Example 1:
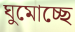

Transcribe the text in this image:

ঘুমোচ্ছে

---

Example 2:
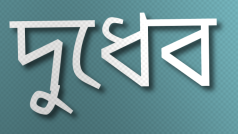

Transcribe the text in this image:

দুধেব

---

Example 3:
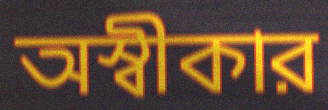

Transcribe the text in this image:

অস্বীকার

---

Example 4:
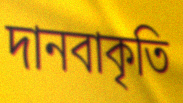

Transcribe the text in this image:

দানবাকৃতি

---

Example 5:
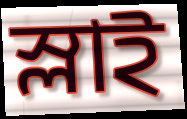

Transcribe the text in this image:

স্লাই